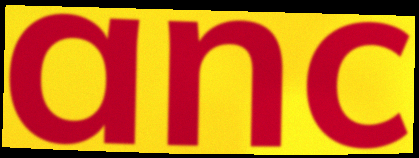
anc